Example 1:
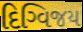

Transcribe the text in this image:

દિગ્વિજય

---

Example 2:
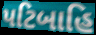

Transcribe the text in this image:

પટિબાહિ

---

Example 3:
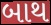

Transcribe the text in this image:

બાથ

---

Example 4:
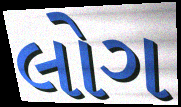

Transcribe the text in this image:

લોગ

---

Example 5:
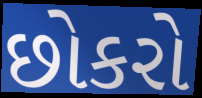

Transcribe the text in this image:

છોકરો